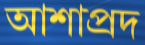
আশাপ্রদ